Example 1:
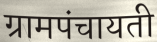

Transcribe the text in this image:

ग्रामपंचायती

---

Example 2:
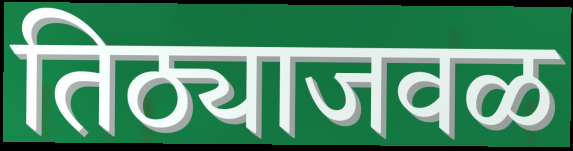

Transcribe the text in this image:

तिठ्याजवळ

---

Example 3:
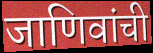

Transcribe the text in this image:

जाणिवांची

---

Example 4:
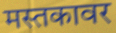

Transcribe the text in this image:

मस्तकावर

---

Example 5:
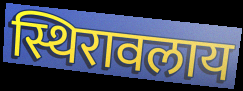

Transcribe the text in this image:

स्थिरावलाय